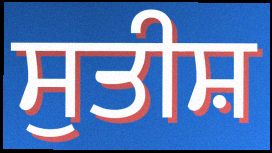
ਸੁਤੀਸ਼